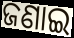
ଜଣାଇ